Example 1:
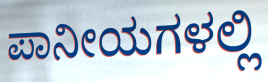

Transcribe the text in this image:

ಪಾನೀಯಗಳಲ್ಲಿ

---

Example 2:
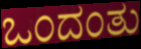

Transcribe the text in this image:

ಒಂದಂತು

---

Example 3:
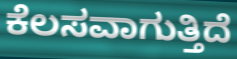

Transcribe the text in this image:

ಕೆಲಸವಾಗುತ್ತಿದೆ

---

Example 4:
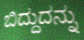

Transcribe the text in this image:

ಬಿದ್ದುದನ್ನು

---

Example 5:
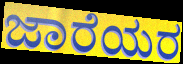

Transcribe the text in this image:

ಜಾರೆಯರ